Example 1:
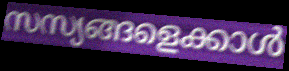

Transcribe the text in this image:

സസ്യങ്ങളെക്കാൾ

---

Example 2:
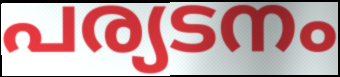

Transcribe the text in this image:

പര്യടനം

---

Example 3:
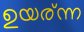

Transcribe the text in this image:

ഉയര്ന്ന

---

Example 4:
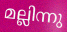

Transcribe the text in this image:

മല്ലിന്നു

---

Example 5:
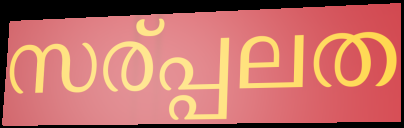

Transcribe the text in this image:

സര്പ്പലത